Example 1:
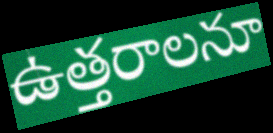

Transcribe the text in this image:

ఉత్తరాలనూ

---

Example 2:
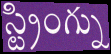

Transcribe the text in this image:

స్ట్రింగ్ను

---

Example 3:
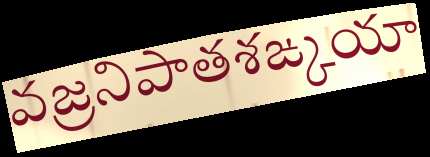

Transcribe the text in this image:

వజ్రనిపాతశఙ్కయా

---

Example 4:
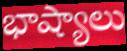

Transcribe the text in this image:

భాష్యాలు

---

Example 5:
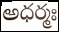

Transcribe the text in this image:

అధర్మః